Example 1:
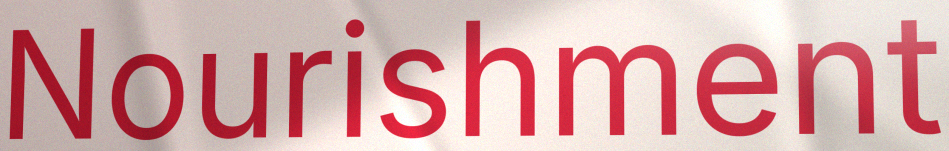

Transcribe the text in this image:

Nourishment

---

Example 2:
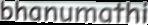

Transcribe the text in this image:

bhanumathi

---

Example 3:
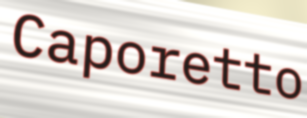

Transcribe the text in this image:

Caporetto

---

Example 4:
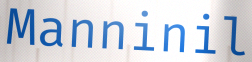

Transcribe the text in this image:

Manninil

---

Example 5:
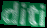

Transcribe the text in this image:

diti